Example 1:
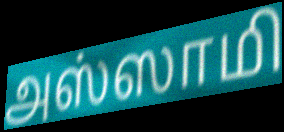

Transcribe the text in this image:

அஸ்ஸாமி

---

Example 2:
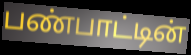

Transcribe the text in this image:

பண்பாட்டின்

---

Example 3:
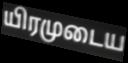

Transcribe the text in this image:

யிரமுடைய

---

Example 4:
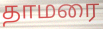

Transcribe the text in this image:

தாமரை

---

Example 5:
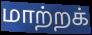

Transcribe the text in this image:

மாற்றக்